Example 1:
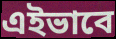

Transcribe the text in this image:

এইভাবে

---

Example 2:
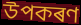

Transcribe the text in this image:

উপকৰণ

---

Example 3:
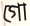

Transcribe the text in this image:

গো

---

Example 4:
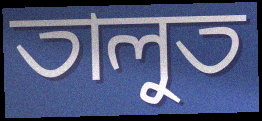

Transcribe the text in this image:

তালুত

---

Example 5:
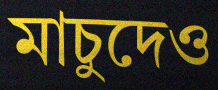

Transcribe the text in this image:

মাচুদেও